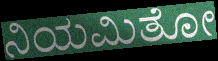
ನಿಯಮಿತೋ